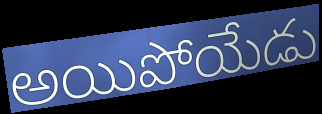
అయిపోయేడు